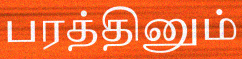
பரத்தினும்